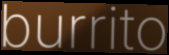
burrito